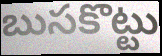
బుసకొట్టు